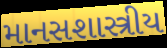
માનસશાસ્ત્રીય